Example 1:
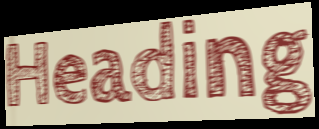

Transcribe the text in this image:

Heading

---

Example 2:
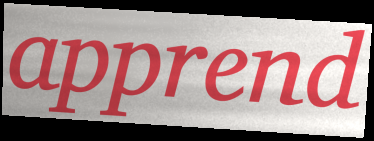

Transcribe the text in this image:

apprend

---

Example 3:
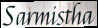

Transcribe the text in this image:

Sarmistha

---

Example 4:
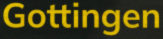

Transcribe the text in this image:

Gottingen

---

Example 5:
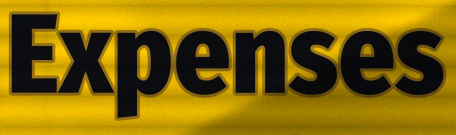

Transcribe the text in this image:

Expenses